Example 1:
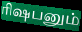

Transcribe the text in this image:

ரிஷபனும்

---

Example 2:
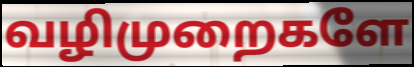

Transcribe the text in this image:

வழிமுறைகளே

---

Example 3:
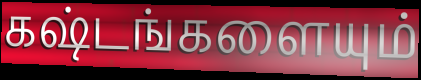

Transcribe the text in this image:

கஷ்டங்களையும்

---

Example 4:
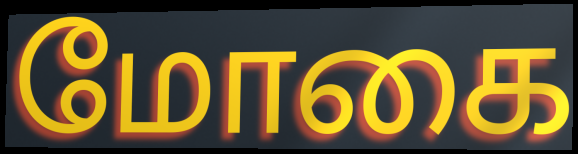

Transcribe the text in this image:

மோகை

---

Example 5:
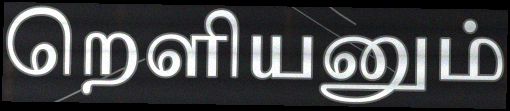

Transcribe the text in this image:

றெளியனும்